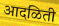
आदळिती